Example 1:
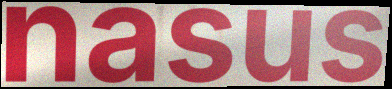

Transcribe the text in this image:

nasus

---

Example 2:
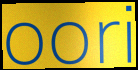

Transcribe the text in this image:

oori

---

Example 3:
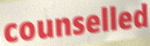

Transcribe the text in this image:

counselled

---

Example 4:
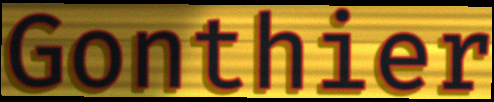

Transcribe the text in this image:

Gonthier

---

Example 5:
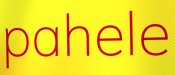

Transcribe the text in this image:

pahele